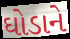
ઘોડાને